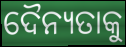
ଦୈନ୍ୟତାକୁ